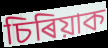
চিৰিয়াক